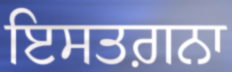
ਇਸਤਗ਼ਨਾ